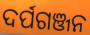
ଦର୍ପଗଞ୍ଜନ